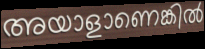
അയാളാണെങ്കിൽ